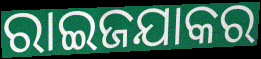
ରାଇଜଯାକର